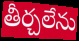
తీర్చలేను